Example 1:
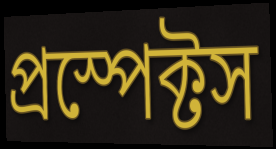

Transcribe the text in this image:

প্রস্পেক্টস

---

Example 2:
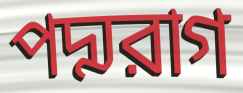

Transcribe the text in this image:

পদ্মরাগ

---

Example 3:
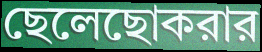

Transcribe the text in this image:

ছেলেছোকরার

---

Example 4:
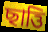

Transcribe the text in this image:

ছাত্তি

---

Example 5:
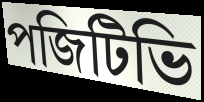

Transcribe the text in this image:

পজিটিভি